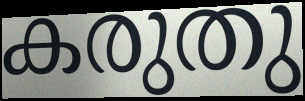
കരുതു